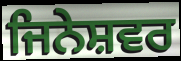
ਜਿਨੇਸ਼ਵਰ